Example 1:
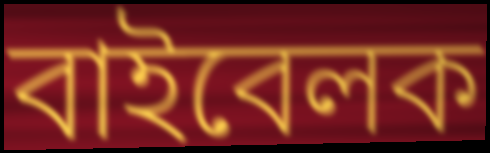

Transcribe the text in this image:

বাইবেলক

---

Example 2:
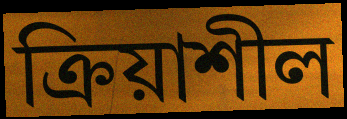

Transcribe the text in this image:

ক্ৰিয়াশীল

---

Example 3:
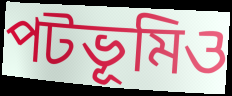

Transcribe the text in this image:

পটভূমিও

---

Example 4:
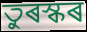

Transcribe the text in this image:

তুৰস্কৰ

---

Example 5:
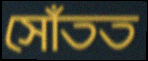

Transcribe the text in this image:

সোঁতত